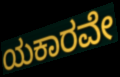
ಯಕಾರವೇ